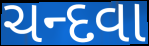
ચન્દવા